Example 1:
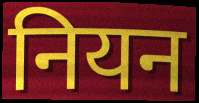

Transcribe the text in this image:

नियन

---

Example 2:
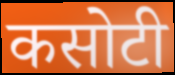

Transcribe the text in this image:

कसोटी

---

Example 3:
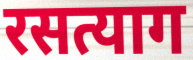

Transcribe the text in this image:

रसत्याग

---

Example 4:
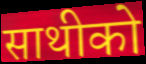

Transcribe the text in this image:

साथीको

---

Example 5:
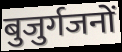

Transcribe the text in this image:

बुजुर्गजनों